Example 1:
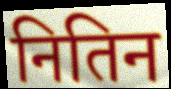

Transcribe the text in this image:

नितिन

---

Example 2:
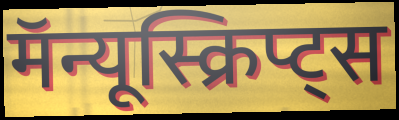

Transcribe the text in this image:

मॅन्यूस्क्रिप्ट्स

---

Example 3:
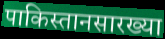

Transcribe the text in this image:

पाकिस्तानसारख्या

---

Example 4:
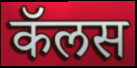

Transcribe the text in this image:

कॅलस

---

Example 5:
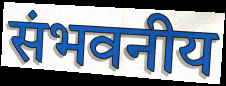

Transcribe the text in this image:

संभवनीय